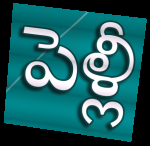
పెళ్లీ